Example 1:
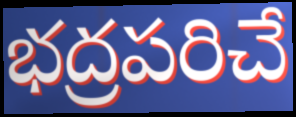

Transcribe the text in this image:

భద్రపరిచే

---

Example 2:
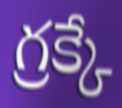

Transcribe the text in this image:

గ్రక్కే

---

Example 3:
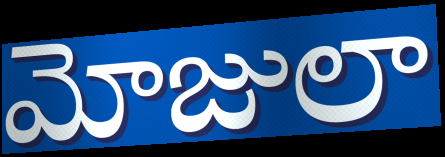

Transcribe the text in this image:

మోజులా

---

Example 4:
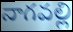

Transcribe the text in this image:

నాగవల్లి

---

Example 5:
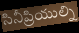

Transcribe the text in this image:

సినీప్రియుల్ని